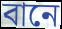
বানে